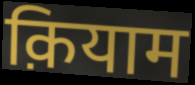
क़ियाम